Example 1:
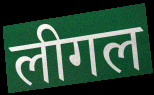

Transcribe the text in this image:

लीगल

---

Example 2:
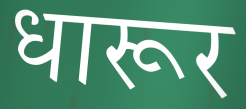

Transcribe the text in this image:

धारूर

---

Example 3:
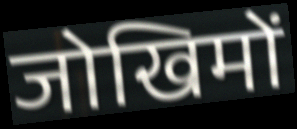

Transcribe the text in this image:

जोखिमों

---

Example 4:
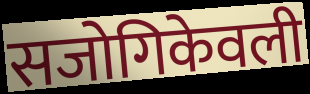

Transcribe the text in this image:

सजोगिकेवली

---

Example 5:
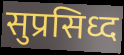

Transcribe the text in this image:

सुप्रसिध्द